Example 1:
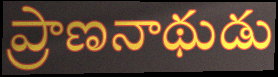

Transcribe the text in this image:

ప్రాణనాథుడు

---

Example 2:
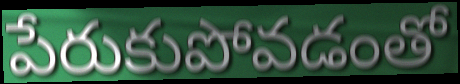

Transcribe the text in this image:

పేరుకుపోవడంతో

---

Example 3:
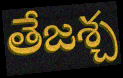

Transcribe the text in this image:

తేజశ్చ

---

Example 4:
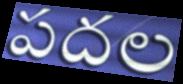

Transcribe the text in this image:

పదల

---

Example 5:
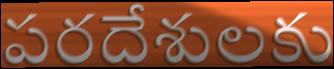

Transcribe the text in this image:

పరదేశులకు